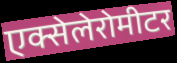
एक्सेलेरोमीटर